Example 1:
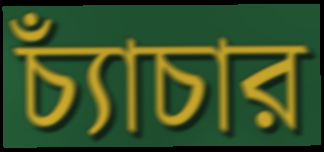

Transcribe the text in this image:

চ্যাঁচার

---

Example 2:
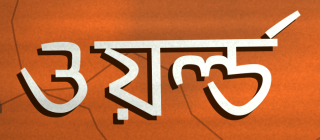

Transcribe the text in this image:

ওয়র্ল্ড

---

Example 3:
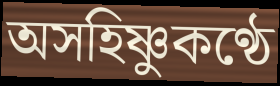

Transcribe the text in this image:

অসহিষ্ণুকণ্ঠে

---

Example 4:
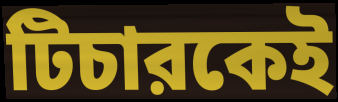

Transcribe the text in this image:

টিচারকেই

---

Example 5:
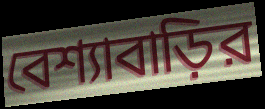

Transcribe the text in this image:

বেশ্যাবাড়ির